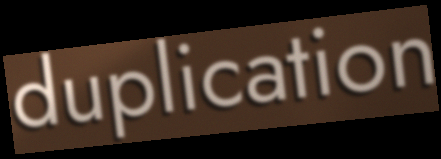
duplication